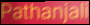
Pathanjali